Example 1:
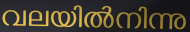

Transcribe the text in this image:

വലയിൽനിന്നു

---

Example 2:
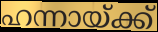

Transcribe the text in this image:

ഹന്നായ്ക്ക്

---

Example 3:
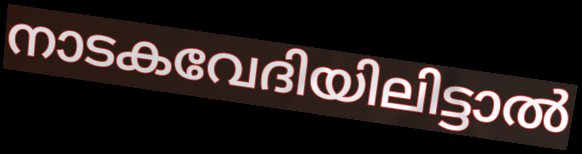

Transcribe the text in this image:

നാടകവേദിയിലിട്ടാൽ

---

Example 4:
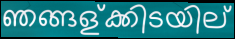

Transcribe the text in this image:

ഞങ്ങള്ക്കിടയില്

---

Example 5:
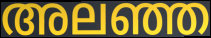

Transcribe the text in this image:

അലഞ്ഞ